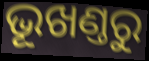
ଭୂଖଣ୍ତରୁ